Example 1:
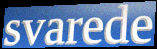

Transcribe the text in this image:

svarede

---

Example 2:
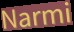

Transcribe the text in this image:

Narmi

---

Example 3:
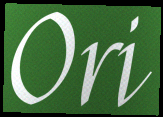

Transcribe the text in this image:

Ori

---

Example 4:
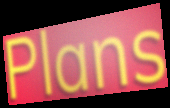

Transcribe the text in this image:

Plans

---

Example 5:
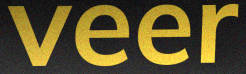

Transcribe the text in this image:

veer